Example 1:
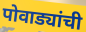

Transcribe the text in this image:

पोवाड्यांची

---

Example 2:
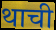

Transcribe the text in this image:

थाची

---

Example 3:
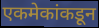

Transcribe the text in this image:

एकमेकांकडून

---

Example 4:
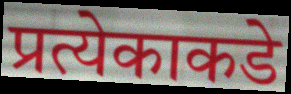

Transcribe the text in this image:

प्रत्येकाकडे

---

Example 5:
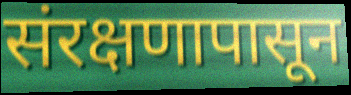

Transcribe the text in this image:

संरक्षणापासून